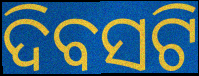
ଦିବସଟି